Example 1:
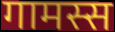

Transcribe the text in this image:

गामस्स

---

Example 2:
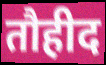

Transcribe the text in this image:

तौहीद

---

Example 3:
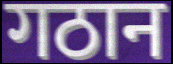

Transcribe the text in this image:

गठान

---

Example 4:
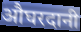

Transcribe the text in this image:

औघरदानी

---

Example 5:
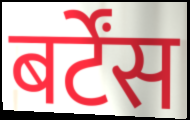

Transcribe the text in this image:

बर्टेंस